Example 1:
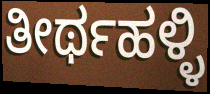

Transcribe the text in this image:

ತೀರ್ಥಹಳ್ಳಿ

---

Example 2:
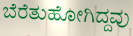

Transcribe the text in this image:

ಬೆರೆತುಹೋಗಿದ್ದವು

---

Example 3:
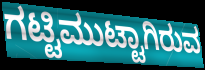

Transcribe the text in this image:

ಗಟ್ಟಿಮುಟ್ಟಾಗಿರುವ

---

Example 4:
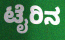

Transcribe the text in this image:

ಟೈರಿನ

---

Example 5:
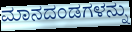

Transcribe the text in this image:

ಮಾನದಂಡಗಳನ್ನು